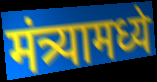
मंत्र्यामध्ये